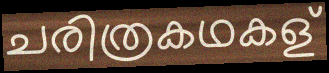
ചരിത്രകഥകള്